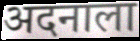
अदनाला